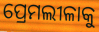
ପ୍ରେମଲୀଳାକୁ